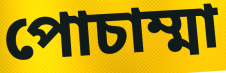
পোচাম্মা